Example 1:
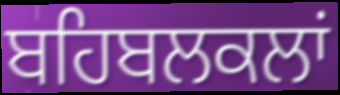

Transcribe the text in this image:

ਬਹਿਬਲਕਲਾਂ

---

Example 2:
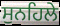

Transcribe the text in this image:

ਸੁਨਹਿਲੇ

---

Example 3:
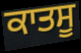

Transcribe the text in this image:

ਕਾਤਸੂ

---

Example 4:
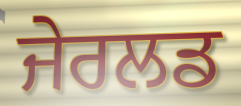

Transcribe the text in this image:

ਜੇਰਲਡ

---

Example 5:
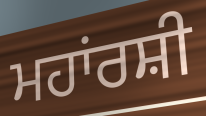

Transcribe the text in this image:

ਮਹਾਂਰਸ਼ੀ